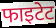
फाइटेट